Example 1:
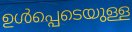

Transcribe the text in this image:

ഉൾപ്പെടെയുള്ള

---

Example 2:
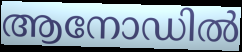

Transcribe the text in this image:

ആനോഡിൽ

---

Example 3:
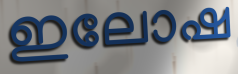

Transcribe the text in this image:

ഇലോഷ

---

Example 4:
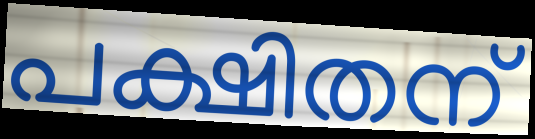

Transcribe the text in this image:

പക്ഷിതന്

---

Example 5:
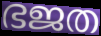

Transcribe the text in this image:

ഭജത